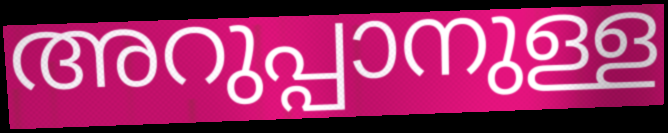
അറുപ്പാനുള്ള